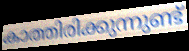
കാത്തിരിക്കുന്നുണ്ട്